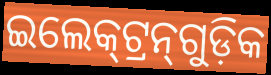
ଇଲେକ୍‍ଟ୍ରନ୍‍ଗୁଡ଼ିକ